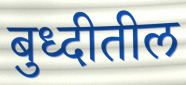
बुध्दीतील